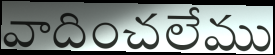
వాదించలేము